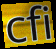
cfi